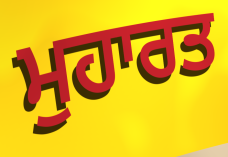
ਮੁਹਾਰਤ